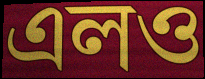
এলও